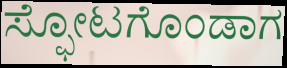
ಸ್ಫೋಟಗೊಂಡಾಗ